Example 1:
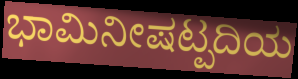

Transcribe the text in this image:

ಭಾಮಿನೀಷಟ್ಪದಿಯ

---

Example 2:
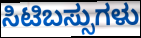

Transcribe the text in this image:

ಸಿಟಿಬಸ್ಸುಗಳು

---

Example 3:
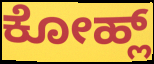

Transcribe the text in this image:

ಕೋಹ್ಲ್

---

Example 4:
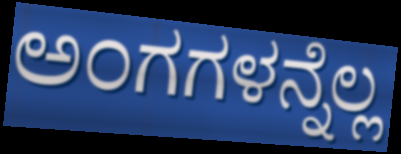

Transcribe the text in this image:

ಅಂಗಗಳನ್ನೆಲ್ಲ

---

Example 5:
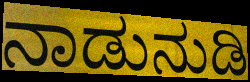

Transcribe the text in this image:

ನಾಡುನುಡಿ